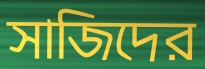
সাজিদের